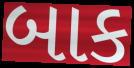
બાક